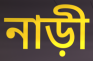
নাড়ী